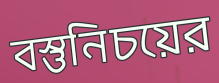
বস্তুনিচয়ের